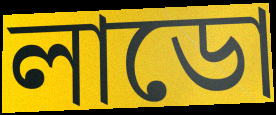
লাডো